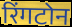
रिंगटोन